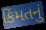
કિંમતનું